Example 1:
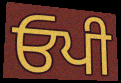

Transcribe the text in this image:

ਓਪੀ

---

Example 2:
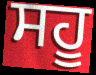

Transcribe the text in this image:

ਸਹੂ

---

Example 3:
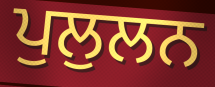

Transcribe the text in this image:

ਪੁਲੁਲਨ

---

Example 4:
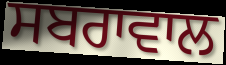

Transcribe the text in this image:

ਸਬਰਾਵਾਲ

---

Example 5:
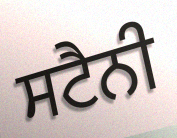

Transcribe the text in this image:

ਸਟੈਨੀ